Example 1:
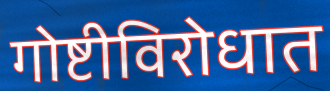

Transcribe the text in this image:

गोष्टीविरोधात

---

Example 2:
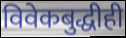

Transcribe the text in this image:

विवेकबुद्धीही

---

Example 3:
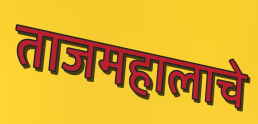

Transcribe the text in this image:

ताजमहालाचे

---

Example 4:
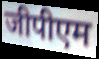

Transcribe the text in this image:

जीपीएम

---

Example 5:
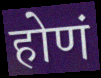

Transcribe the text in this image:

होणं